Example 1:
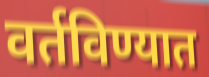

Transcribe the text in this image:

वर्तविण्यात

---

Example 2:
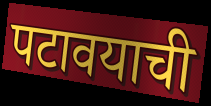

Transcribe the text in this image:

पटावयाची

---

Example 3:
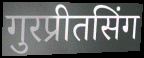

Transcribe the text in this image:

गुरप्रीतसिंग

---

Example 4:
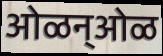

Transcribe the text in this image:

ओळन्ओळ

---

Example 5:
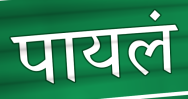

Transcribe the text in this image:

पायलं